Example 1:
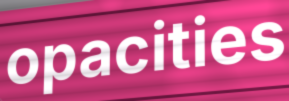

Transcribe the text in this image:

opacities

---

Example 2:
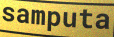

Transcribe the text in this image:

samputa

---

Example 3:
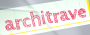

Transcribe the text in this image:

architrave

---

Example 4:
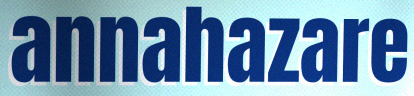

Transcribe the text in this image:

annahazare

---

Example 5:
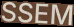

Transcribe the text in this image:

SSEM